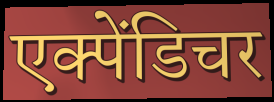
एक्पेंडिचर